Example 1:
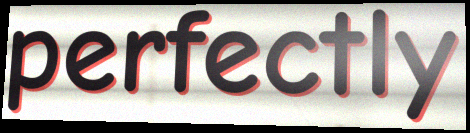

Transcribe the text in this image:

perfectly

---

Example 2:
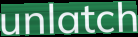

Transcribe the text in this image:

unlatch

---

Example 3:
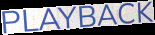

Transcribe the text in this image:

PLAYBACK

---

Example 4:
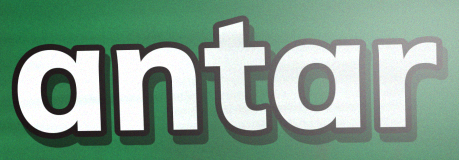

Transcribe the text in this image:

antar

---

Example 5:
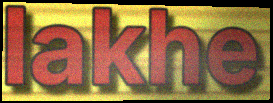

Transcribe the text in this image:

lakhe